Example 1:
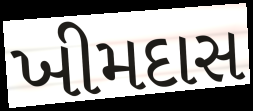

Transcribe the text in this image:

ખીમદાસ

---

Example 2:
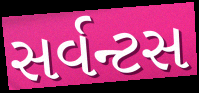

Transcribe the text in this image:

સર્વન્ટસ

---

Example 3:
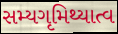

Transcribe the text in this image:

સમ્યગૃમિથ્યાત્વ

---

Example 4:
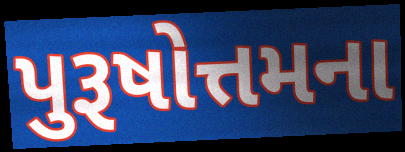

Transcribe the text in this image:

પુરૂષોત્તમના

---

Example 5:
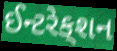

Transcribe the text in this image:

ઈન્ટરેક્‌શન